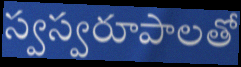
స్వస్వరూపాలతో